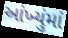
આંખ્યુંમાં